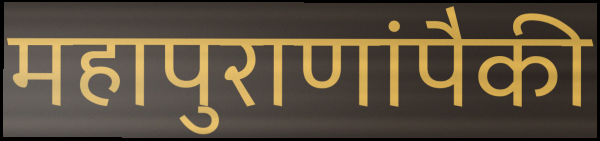
महापुराणांपैकी